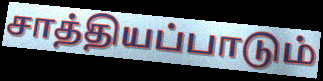
சாத்தியப்பாடும்